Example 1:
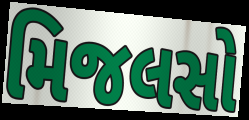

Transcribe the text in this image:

મિજલસો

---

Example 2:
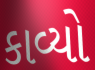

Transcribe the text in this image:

કાવ્યો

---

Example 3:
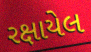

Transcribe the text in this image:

રક્ષાયેલ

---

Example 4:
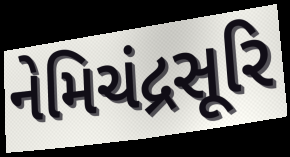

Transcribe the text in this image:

નેમિચંદ્રસૂરિ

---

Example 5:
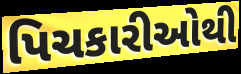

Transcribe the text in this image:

પિચકારીઓથી